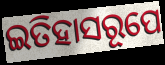
ଇତିହାସରୂପେ